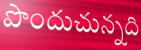
పొందుచున్నది